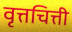
वृत्तचित्ती